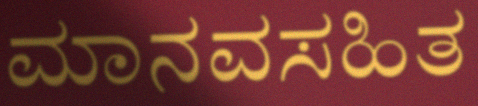
ಮಾನವಸಹಿತ